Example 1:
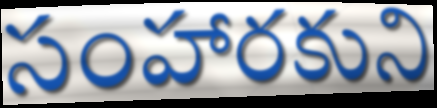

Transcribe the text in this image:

సంహారకుని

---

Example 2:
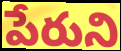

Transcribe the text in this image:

పేరుని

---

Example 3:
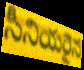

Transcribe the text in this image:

సీనియరైన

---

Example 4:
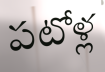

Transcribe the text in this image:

పటోళ్ల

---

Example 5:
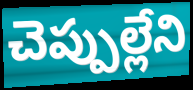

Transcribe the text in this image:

చెప్పుల్లేని